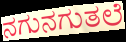
ನಗುನಗುತಲೆ